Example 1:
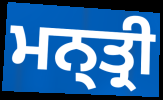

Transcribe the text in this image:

ਮਨ੍ਤ੍ਰੀ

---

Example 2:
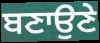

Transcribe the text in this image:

ਬਣਾਉਣੇ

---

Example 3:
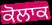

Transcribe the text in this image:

ਕੋਲਾਕ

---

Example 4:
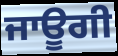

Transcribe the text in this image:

ਜਾਊਗੀ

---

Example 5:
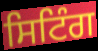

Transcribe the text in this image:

ਸਿਟਿੰਗ